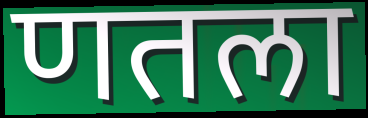
णतला